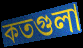
কতগুলা